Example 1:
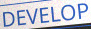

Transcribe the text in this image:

DEVELOP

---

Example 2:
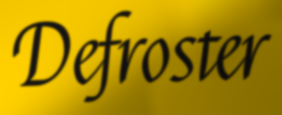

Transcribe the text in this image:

Defroster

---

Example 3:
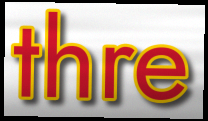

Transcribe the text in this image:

thre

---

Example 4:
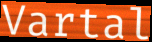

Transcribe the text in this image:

Vartal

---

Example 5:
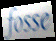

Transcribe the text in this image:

fosse